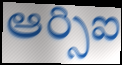
ఆర్సిఐ